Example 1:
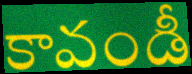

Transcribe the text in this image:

కావండీ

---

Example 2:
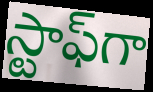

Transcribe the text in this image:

స్టాఫ్‌గా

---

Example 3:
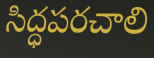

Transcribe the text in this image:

సిద్ధపరచాలి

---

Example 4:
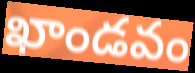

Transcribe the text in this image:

ఖాండవం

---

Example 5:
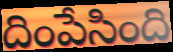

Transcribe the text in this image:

దింపేసింది